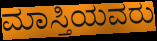
ಮಾಸ್ತಿಯವರು